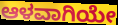
ಆಳವಾಗಿಯೇ